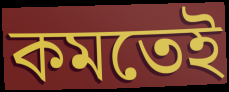
কমতেই